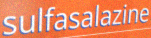
sulfasalazine